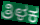
ತಿಳಕ